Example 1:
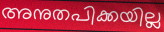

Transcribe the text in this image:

അനുതപിക്കയില്ല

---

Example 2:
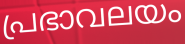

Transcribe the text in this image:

പ്രഭാവലയം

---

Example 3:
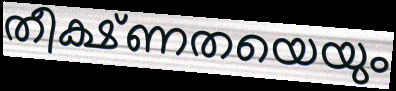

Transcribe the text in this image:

തീക്ഷ്ണതയെയും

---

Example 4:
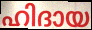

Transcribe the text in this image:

ഹിദായ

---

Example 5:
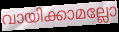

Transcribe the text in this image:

വായിക്കാമല്ലോ